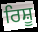
ਰਿਸ਼ੂ